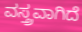
ವಸ್ತ್ರವಾಗಿದೆ